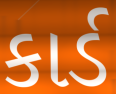
કાર્ડ